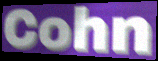
Cohn